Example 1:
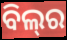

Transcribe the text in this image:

ବିଲ୍‌ର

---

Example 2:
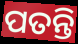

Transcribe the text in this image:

ପତନ୍ତି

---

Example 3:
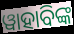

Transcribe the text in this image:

ୱାହାବିଙ୍କ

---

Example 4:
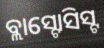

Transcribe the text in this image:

ବ୍ଲାସ୍ଟୋସିସ୍ଟ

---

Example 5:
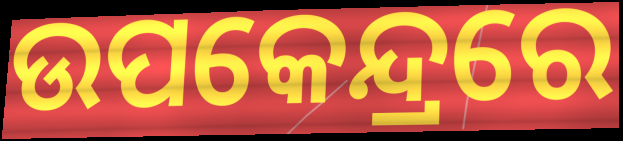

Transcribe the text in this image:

ଉପକେନ୍ଦ୍ରରେ